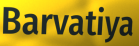
Barvatiya